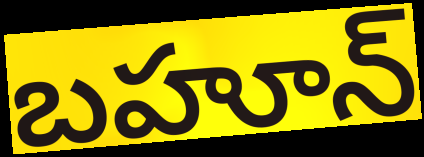
బహూన్